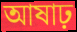
আষাঢ়